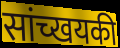
सांच्खयकी